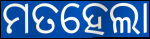
ମତହେଲା